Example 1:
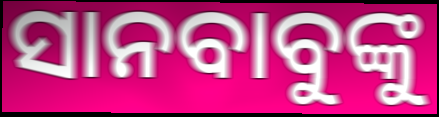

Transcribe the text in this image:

ସାନବାବୁଙ୍କୁ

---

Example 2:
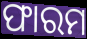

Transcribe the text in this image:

ଫାରମ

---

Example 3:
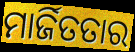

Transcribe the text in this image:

ମାର୍ଜିତତାର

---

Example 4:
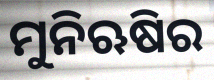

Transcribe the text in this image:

ମୁନିଋଷିର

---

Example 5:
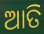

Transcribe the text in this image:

ଆତି